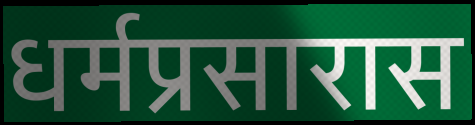
धर्मप्रसारास